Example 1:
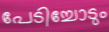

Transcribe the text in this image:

പേടിച്ചോടും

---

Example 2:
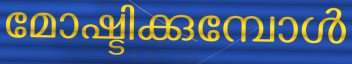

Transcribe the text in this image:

മോഷ്ടിക്കുമ്പോൾ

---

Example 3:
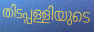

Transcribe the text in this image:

തിടപ്പള്ളിയുടെ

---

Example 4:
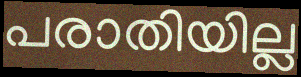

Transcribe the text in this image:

പരാതിയില്ല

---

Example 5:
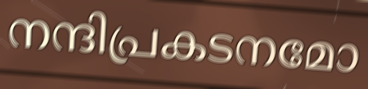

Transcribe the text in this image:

നന്ദിപ്രകടനമോ